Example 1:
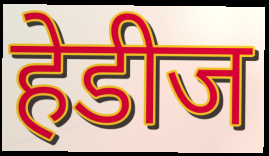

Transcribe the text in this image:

हेडीज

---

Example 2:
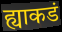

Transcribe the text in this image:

ह्याकडं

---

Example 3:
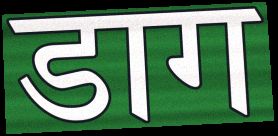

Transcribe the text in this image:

डाग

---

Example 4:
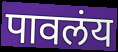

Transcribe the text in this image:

पावलंय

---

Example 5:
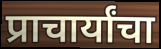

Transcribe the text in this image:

प्राचार्यांचा